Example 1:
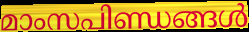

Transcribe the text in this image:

മാംസപിണ്ഡങ്ങൾ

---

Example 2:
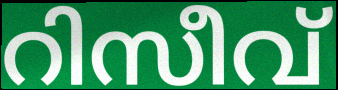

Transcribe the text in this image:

റിസീവ്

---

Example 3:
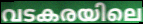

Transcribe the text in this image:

വടകരയിലെ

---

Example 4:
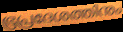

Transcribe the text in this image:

ഭൂപ്രദേശത്തിനും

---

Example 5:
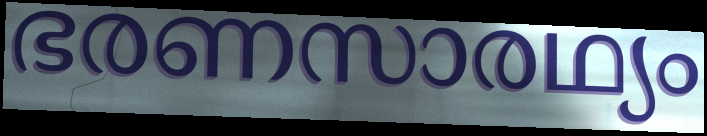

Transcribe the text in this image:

ഭരണസാരഥ്യം